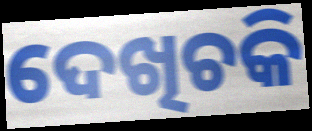
ଦେଖିଚକି